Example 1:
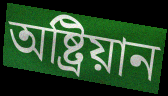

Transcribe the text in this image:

অষ্ট্ৰিয়ান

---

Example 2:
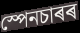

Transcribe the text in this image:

স্পেনচাৰৰ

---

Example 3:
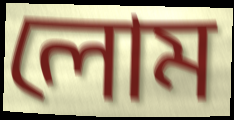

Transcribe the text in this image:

লোম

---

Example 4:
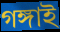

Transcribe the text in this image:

গঙ্গাই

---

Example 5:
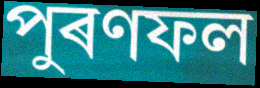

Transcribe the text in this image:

পুৰণফল